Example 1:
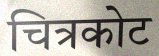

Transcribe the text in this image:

चित्रकोट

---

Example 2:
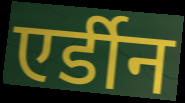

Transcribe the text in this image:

एर्डीन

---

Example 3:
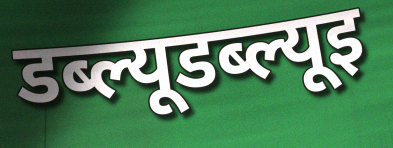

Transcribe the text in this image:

डब्ल्यूडब्ल्यूइ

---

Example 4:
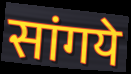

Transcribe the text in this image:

सांगये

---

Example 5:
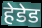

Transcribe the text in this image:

हेडेड